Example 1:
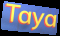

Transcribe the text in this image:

Taya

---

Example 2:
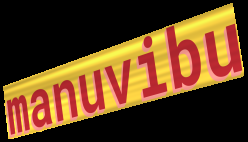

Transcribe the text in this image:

manuvibu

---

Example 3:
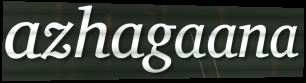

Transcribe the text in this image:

azhagaana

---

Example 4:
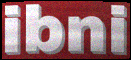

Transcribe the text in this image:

ibni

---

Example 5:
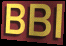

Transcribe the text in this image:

BBI